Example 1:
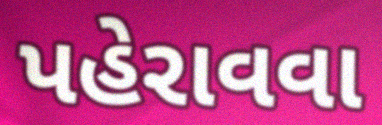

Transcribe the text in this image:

પહેરાવવા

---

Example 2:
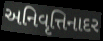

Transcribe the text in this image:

અનિવૃત્તિનાદર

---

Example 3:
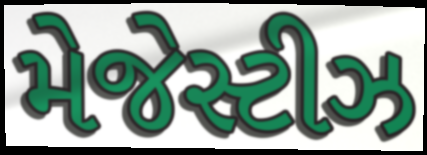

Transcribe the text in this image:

મેજેસ્ટીઝ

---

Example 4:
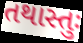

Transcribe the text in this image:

તથાસ્તુઃ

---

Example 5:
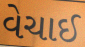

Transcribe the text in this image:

વેચાઈ